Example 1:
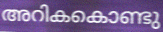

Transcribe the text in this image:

അറികകൊണ്ടു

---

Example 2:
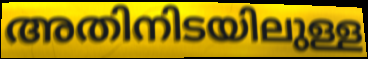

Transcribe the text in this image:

അതിനിടയിലുള്ള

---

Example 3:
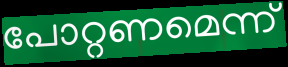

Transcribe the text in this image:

പോറ്റണമെന്ന്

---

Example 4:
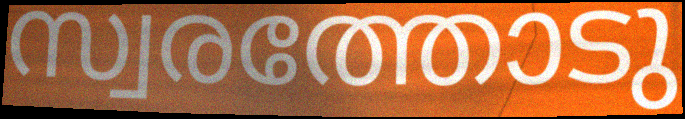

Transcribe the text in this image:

സ്വരത്തോടു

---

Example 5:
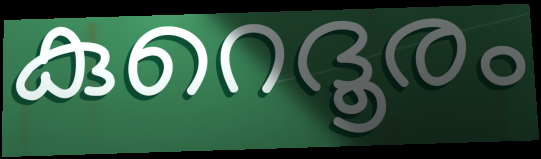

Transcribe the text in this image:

കുറെദൂരം